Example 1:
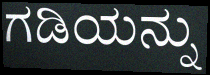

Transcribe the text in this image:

ಗಡಿಯನ್ನು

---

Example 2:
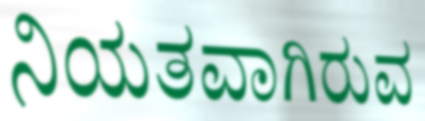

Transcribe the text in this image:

ನಿಯತವಾಗಿರುವ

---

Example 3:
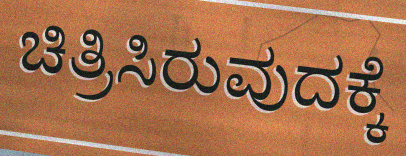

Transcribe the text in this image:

ಚಿತ್ರಿಸಿರುವುದಕ್ಕೆ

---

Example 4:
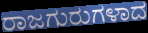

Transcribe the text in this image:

ರಾಜಗುರುಗಳಾದ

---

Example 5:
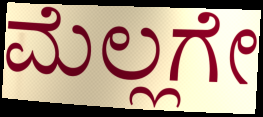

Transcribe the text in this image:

ಮೆಲ್ಲಗೇ